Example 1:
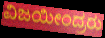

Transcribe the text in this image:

ವಿಜಯೀಂದ್ರರು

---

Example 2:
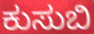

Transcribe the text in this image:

ಕುಸುಬಿ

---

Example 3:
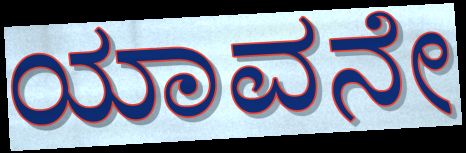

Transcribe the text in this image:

ಯಾವನೇ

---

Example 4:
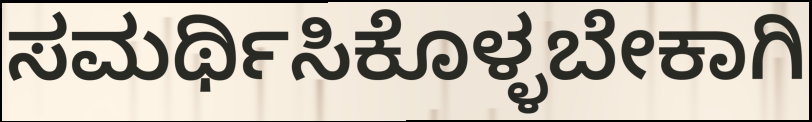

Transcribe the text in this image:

ಸಮರ್ಥಿಸಿಕೊಳ್ಳಬೇಕಾಗಿ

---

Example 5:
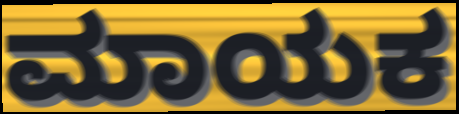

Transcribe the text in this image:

ಮಾಯಕ